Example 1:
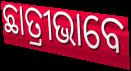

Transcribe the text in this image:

ଛାତ୍ରୀଭାବେ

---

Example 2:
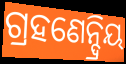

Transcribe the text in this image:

ଗ୍ରହଣେନ୍ଦ୍ରିୟ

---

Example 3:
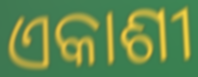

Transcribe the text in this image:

ଏକାଶୀ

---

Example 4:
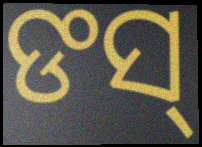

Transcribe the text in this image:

ଙସ୍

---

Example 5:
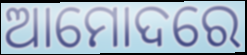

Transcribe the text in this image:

ଆମୋଦରେ